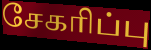
சேகரிப்பு